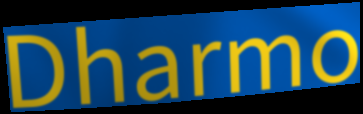
Dharmo